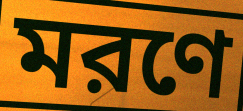
মরণে